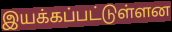
இயக்கப்பட்டுள்ளன